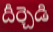
దీర్చెడి